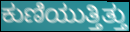
ಕುಣಿಯುತ್ತಿತ್ತು